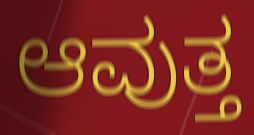
ಆವುತ್ತ